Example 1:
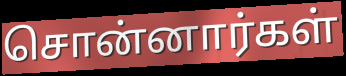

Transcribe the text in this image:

சொன்னார்கள்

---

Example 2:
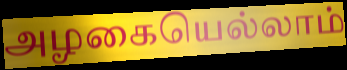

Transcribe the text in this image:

அழகையெல்லாம்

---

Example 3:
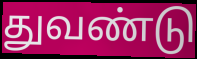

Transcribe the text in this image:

துவண்டு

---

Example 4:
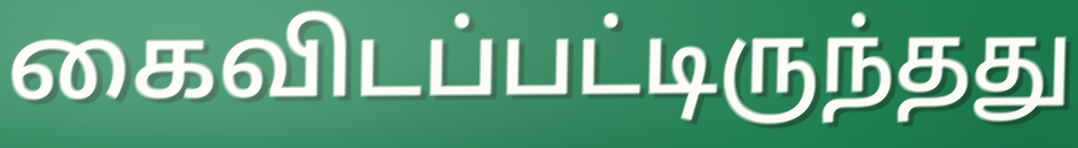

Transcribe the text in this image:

கைவிடப்பட்டிருந்தது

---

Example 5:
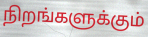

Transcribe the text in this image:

நிறங்களுக்கும்